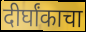
दीर्घांकाचा